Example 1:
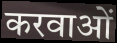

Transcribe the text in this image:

करवाओं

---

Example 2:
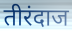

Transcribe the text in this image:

तीरंदाज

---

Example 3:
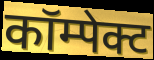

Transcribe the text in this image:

कॉम्पेक्ट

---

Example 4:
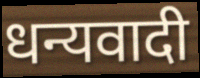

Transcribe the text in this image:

धन्यवादी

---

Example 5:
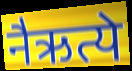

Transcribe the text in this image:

नैऋत्ये